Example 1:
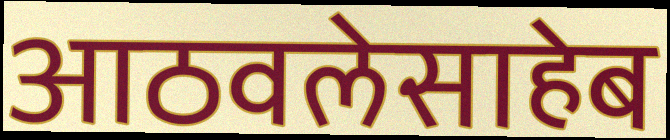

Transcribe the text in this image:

आठवलेसाहेब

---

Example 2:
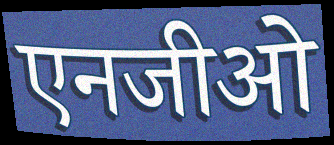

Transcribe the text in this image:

एनजीओ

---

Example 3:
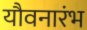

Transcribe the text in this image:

यौवनारंभ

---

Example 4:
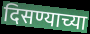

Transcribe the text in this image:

दिसण्याच्या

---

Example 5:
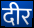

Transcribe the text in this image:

दीर